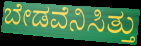
ಬೇಡವೆನಿಸಿತ್ತು